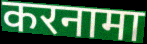
करनामा